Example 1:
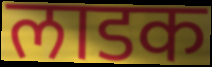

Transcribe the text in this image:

लाडक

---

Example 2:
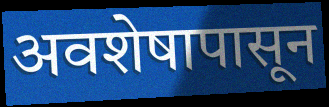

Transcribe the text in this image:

अवशेषापासून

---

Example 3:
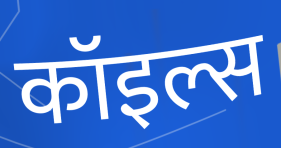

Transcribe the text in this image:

कॉइल्स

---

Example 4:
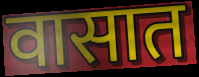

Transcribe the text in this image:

वासात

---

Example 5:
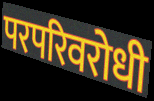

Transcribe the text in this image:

परपरिवरोधी